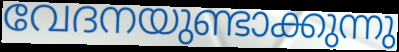
വേദനയുണ്ടാക്കുന്നു